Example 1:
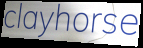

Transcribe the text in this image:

clayhorse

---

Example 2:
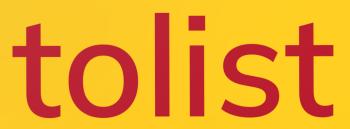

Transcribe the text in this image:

tolist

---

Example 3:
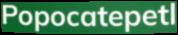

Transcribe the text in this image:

Popocatepetl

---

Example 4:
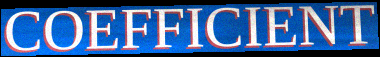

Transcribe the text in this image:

COEFFICIENT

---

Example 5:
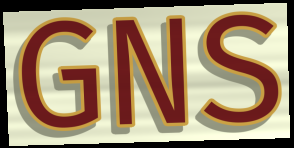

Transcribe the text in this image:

GNS